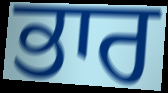
ਭਾਰ